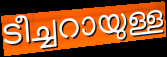
ടീച്ചറായുള്ള